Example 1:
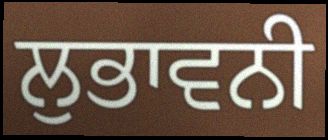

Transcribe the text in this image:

ਲੁਭਾਵਨੀ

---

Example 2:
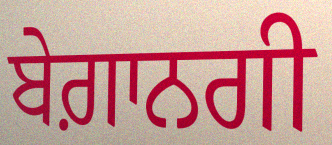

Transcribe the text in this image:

ਬੇਗ਼ਾਨਗੀ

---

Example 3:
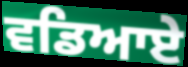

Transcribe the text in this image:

ਵਡਿਆਏ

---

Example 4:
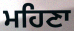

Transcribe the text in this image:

ਮਹਿਣਾ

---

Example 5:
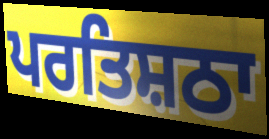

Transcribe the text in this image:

ਪਰਤਿਸ਼ਠਾ